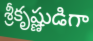
శ్రీకృష్ణుడిగా